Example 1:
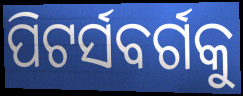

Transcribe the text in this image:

ପିଟର୍ସବର୍ଗକୁ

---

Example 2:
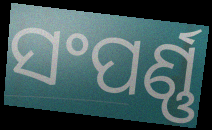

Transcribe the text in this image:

ସଂପର୍ଣ୍ଣ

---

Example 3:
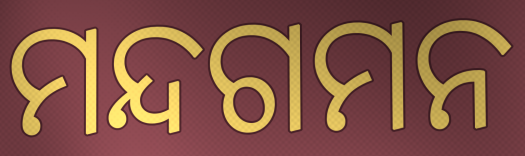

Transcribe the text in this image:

ମନ୍ଦଗମନ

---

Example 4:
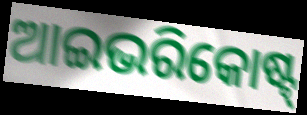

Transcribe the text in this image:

ଆଇଭରିକୋଷ୍ଟ୍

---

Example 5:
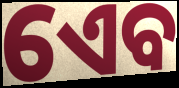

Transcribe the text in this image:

ଏେବ